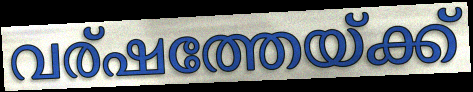
വര്ഷത്തേയ്ക്ക്